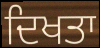
ਦਿਖਤਾ